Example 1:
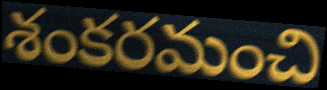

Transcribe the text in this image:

శంకరమంచి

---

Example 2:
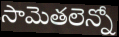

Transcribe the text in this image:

సామెతలెన్నో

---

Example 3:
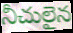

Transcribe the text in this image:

నీచులైన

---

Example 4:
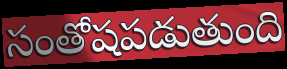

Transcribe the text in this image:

సంతోషపడుతుంది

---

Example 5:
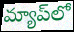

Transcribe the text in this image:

మ్యాప్‌లో